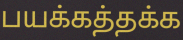
பயக்கத்தக்க